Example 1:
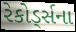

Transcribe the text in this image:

રેકોર્ડ્સના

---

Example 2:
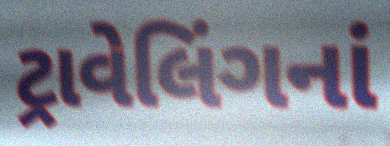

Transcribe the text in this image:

ટ્રાવેલિંગનાં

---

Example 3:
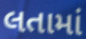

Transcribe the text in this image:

લતામાં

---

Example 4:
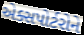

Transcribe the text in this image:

એક્સપોર્ટરોને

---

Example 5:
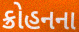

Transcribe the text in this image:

ક્રોહનના